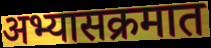
अभ्यासक्रमात